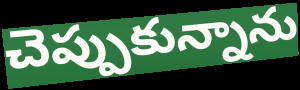
చెప్పుకున్నాను